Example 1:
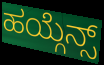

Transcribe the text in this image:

ಹಯ್ಗೆನ್ಸ್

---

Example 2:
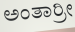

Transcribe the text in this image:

ಅಂತಾರ್ರೀ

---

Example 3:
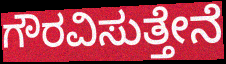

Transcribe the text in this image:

ಗೌರವಿಸುತ್ತೇನೆ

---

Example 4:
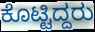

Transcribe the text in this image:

ಕೊಟ್ಟಿದ್ದರು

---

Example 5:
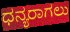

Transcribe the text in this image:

ಧನ್ಯರಾಗಲು